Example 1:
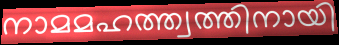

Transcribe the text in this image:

നാമമഹത്ത്വത്തിനായി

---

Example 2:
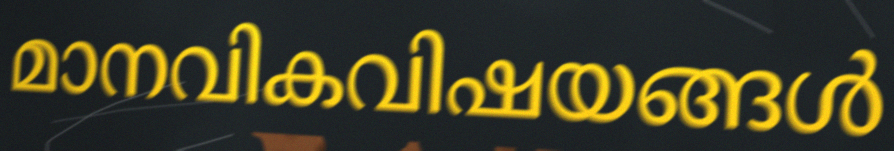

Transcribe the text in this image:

മാനവികവിഷയങ്ങൾ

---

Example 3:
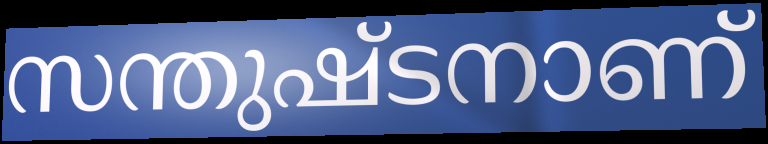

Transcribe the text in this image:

സന്തുഷ്ടനാണ്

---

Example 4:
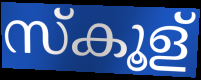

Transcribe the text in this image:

സ്കൂള്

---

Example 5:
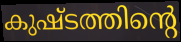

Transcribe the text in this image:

കുഷ്ടത്തിന്റെ